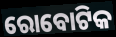
ରୋବୋଟିକ